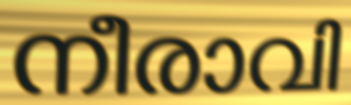
നീരാവി